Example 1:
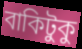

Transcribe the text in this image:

বাকিটুকু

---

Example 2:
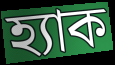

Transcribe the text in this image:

হ্যাক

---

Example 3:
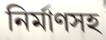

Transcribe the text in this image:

নির্মাণসহ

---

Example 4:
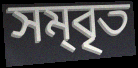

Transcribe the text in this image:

সম্‌বৃত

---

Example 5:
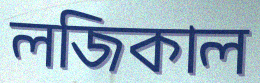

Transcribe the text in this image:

লজিকাল